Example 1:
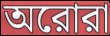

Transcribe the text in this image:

অরোরা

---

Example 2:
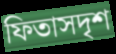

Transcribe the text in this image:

ফিতাসদৃশ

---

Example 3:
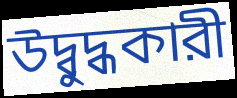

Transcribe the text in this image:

উদ্বুদ্ধকারী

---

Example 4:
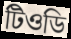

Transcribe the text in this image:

টিওডি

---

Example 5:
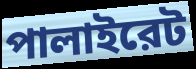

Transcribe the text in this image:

পালাইরেট